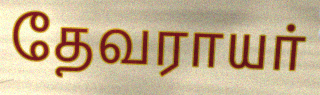
தேவராயர்